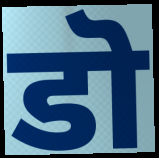
डॊ